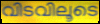
വിടവിലൂടെ